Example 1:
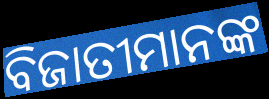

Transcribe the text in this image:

ବିଜାତୀମାନଙ୍କ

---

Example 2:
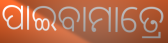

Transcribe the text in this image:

ପାଇବାମାତ୍ରେ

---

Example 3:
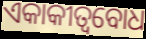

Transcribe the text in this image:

ଏକାକୀତ୍ୱବୋଧ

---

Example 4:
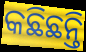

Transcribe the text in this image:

କଛିଛନ୍ତି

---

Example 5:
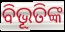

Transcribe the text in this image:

ବିଭୂତିଙ୍କ